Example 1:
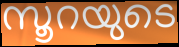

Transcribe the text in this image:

സൂറയുടെ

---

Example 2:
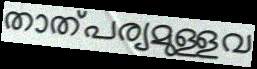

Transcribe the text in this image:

താത്പര്യമുള്ളവ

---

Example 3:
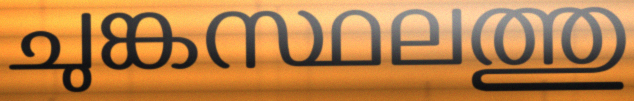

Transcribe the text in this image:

ചുങ്കസ്ഥലത്തു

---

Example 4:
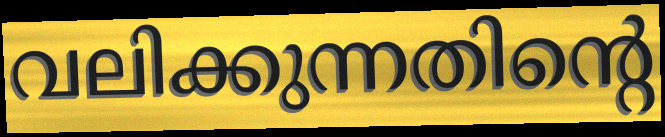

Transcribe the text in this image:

വലിക്കുന്നതിന്റെ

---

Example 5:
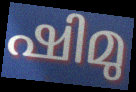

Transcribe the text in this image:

ഷിമു